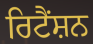
ਰਿਟੈਂਸ਼ਨ